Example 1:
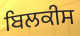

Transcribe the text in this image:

ਬਿਲਕੀਸ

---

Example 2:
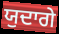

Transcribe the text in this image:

ਯੁਦਾਗੇ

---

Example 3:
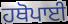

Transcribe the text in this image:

ਹਥੋਪਾਈ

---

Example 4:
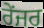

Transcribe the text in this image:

ਰੇਂਜਰ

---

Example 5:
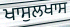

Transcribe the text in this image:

ਖਾਸੁਲਖਾਸ